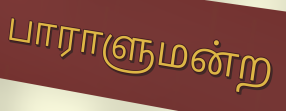
பாராளுமன்ற